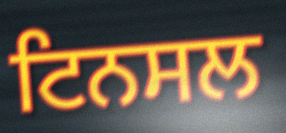
ਟਿਨਸਲ